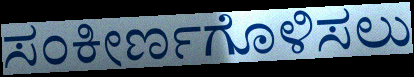
ಸಂಕೀರ್ಣಗೊಳಿಸಲು